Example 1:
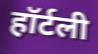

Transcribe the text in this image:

हॉर्टली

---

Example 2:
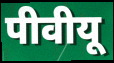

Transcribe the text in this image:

पीवीयू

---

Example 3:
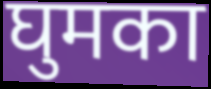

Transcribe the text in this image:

घुमका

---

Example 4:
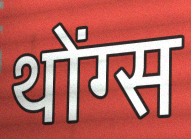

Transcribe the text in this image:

थोंग्स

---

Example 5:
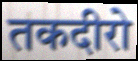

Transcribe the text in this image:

तकदीरो